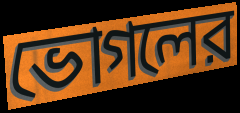
ভোগলের